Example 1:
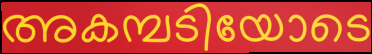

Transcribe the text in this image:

അകമ്പടിയോടെ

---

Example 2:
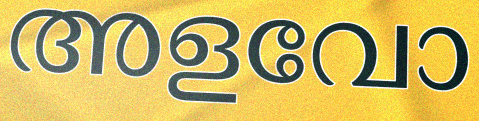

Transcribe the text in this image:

അളവോ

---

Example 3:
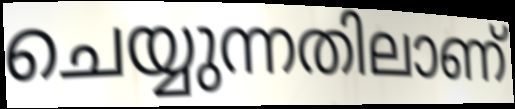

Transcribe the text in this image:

ചെയ്യുന്നതിലാണ്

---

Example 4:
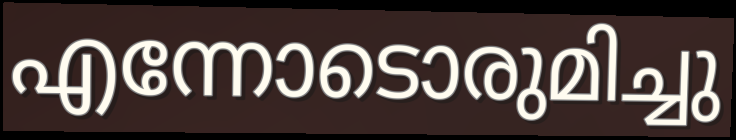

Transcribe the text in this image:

എന്നോടൊരുമിച്ചു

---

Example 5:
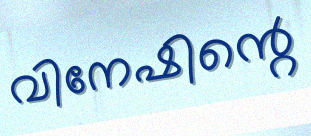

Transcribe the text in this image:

വിനേഷിന്റെ